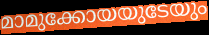
മാമുക്കോയയുടേയും